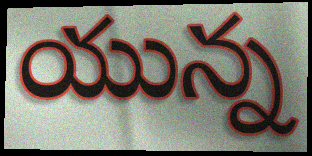
యున్న